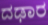
ದಢಾರ